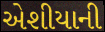
એશીયાની